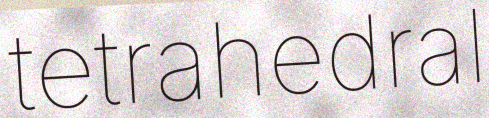
tetrahedral